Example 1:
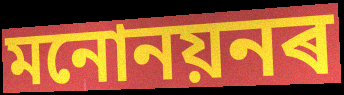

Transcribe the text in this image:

মনোনয়নৰ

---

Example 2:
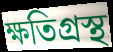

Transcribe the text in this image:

ক্ষতিগ্ৰস্থ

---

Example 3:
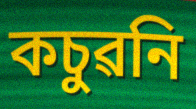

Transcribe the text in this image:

কচুৱনি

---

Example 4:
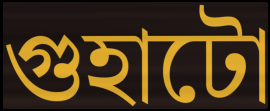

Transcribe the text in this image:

গুহাটো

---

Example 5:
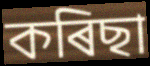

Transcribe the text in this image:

কৰিছা